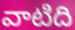
వాటిది